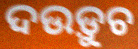
ଦଉଡ଼ୁଚ